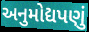
અનુમોદ્યપણું